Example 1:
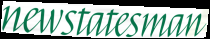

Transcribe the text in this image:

newstatesman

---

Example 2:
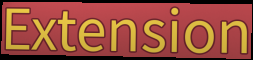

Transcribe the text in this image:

Extension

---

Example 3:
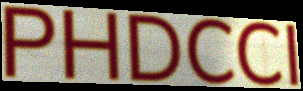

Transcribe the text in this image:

PHDCCI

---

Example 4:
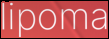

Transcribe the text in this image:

lipoma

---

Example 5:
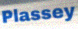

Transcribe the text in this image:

Plassey